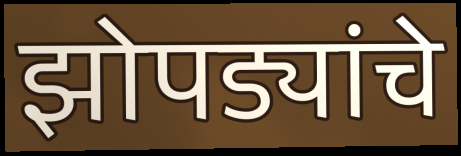
झोपड्यांचे